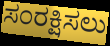
ಸಂರಕ್ಷಿಸಲು